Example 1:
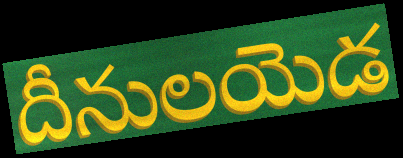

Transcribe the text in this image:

దీనులయెడ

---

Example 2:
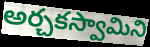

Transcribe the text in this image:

అర్చకస్వామిని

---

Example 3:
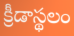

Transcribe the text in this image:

క్రీడాస్థలం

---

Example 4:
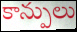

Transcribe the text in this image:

కాన్పులు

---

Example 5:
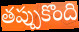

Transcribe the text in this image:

తప్పుకొంది